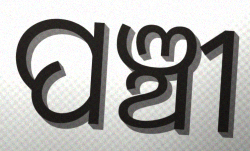
ପଞ୍ଚୀ